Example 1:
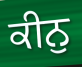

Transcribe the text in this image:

ਕੀਨੁ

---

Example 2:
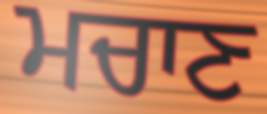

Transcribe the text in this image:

ਮਚਾਣ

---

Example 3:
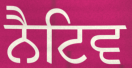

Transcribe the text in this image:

ਨੈਟਿਵ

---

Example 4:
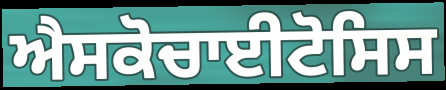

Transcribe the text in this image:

ਐਸਕੋਚਾਈਟੋਸਿਸ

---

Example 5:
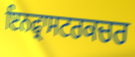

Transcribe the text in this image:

ਇਨਫ੍ਰਾਸਟਰਕਚਰ